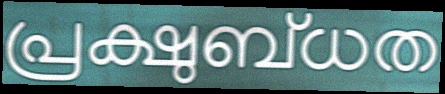
പ്രക്ഷുബ്ധത